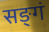
सङ्गं